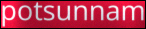
potsunnam